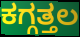
ಕಗ್ಗತ್ತಲ